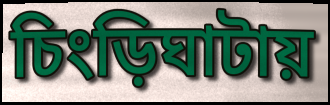
চিংড়িঘাটায়